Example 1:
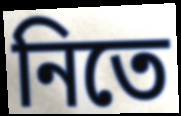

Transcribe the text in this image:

নিতে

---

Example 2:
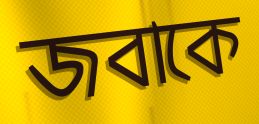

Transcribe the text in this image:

জবাকে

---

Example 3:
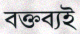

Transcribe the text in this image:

বক্তব্যই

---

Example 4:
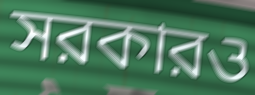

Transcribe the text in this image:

সরকারও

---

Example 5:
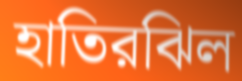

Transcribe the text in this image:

হাতিরঝিল